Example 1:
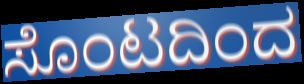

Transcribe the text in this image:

ಸೊಂಟದಿಂದ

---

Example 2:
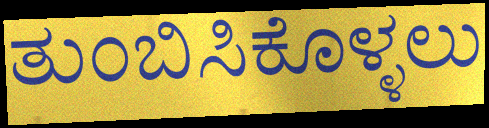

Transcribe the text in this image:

ತುಂಬಿಸಿಕೊಳ್ಳಲು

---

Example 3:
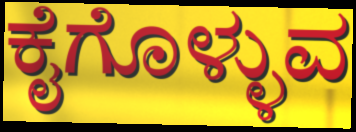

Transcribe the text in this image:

ಕೈಗೊಳ್ಳುವ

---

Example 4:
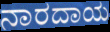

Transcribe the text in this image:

ನಾರದಾಯ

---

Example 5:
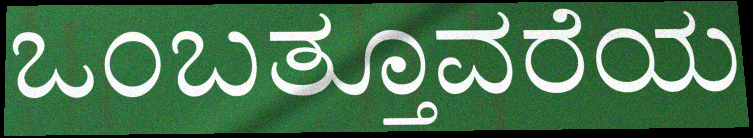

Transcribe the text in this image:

ಒಂಬತ್ತೂವರೆಯ